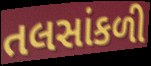
તલસાંકળી